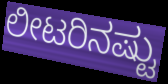
ಲೀಟರಿನಷ್ಟು